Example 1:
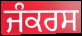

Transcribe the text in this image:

ਜੰਕਰਸ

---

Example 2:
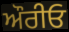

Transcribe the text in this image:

ਔਰੀਓ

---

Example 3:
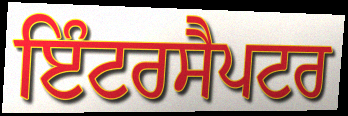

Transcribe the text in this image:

ਇੰਟਰਸੈਪਟਰ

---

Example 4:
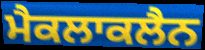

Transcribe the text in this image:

ਮੈਕਲਾਕਲੈਨ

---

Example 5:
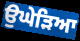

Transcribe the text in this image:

ਉਘੇੜਿਆ